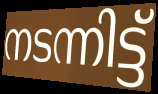
നടന്നിട്ട്